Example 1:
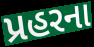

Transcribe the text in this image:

પ્રહરના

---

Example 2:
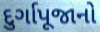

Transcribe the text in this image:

દુર્ગાપૂજાનો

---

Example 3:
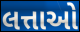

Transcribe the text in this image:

લત્તાઓ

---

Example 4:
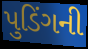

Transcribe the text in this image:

પુડિંગની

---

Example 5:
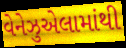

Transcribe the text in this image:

વેનેઝુએલામાંથી